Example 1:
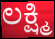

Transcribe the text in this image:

ಲಕ್ಷ್ಮಿ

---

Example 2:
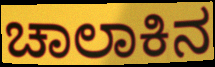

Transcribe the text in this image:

ಚಾಲಾಕಿನ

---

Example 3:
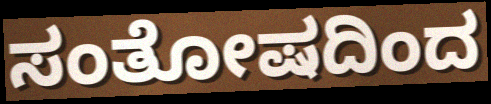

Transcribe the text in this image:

ಸಂತೋಷದಿಂದ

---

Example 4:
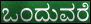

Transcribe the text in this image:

ಒಂದುವರೆ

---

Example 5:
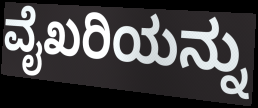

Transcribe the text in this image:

ವೈಖರಿಯನ್ನು